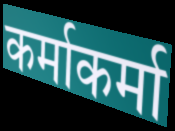
कर्माकर्मा